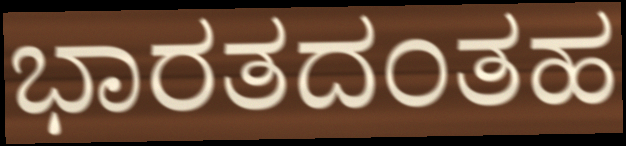
ಭಾರತದಂತಹ